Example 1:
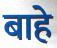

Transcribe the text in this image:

बाहे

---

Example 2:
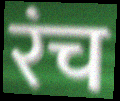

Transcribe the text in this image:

रंच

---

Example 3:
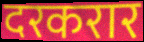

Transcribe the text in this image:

दरकरार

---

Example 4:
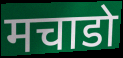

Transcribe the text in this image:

मचाडो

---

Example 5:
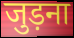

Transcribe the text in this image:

जुड़ना